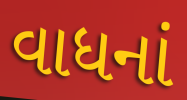
વાધનાં